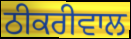
ਠੀਕਰੀਵਾਲ